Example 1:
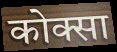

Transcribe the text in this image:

कोक्सा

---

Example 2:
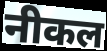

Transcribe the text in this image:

नीकल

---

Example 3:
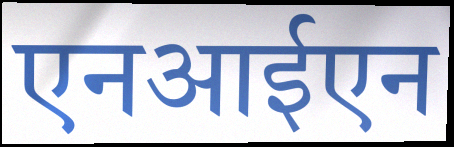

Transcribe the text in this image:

एनआईएन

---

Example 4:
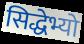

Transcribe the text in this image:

सिद्धेभ्यो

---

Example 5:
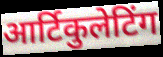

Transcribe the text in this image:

आर्टिकुलेटिंग